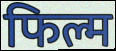
फिल्‍म